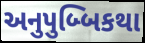
અનુપુબ્બિકથા